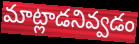
మాట్లాడనివ్వడం